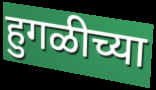
हुगळीच्या